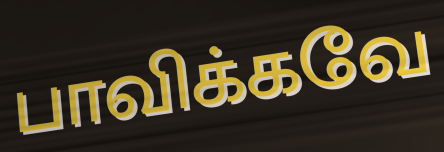
பாவிக்கவே